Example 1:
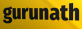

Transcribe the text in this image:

gurunath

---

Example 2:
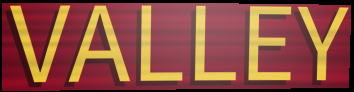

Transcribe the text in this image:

VALLEY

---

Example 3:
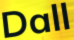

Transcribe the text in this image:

Dall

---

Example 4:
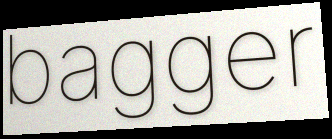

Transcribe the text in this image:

bagger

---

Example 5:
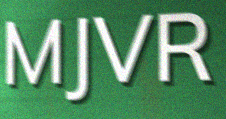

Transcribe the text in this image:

MJVR